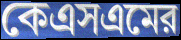
কেএসএমের